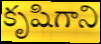
కృషిగాని